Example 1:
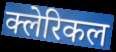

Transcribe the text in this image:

क्लेरिकल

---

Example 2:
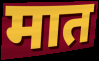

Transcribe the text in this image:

मात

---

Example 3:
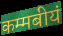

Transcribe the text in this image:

कम्मबीयं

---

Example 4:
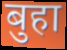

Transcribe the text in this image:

बुहा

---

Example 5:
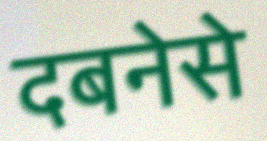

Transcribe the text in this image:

दबनेसे